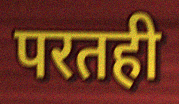
परतही